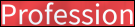
Profession